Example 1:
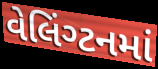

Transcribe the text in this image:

વેલિંગ્ટનમાં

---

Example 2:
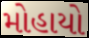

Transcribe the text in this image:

મોહાયો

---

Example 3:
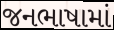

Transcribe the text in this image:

જનભાષામાં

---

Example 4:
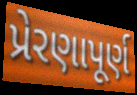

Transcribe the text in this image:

પ્રેરણાપૂર્ણ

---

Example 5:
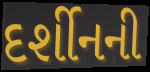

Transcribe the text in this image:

દર્શીનની